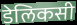
डेलिकसी